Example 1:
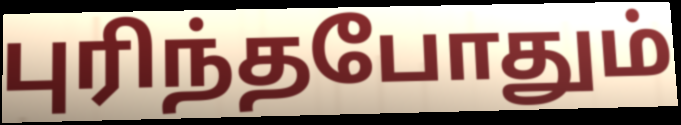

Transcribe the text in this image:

புரிந்தபோதும்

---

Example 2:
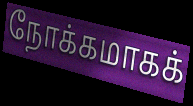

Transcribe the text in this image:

நோக்கமாகக்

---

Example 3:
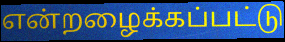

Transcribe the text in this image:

என்றழைக்கப்பட்டு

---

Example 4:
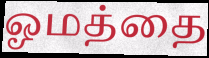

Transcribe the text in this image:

ஓமத்தை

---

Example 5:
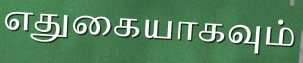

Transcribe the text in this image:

எதுகையாகவும்